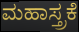
ಮಹಾಸ್ತ್ರಕೆ